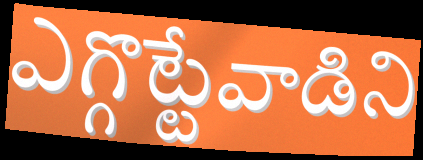
ఎగ్గొట్టేవాడిని